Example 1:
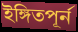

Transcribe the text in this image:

ইঙ্গিতপূর্ন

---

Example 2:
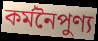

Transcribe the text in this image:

কর্মনৈপুণ্য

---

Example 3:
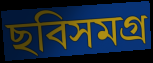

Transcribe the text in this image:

ছবিসমগ্র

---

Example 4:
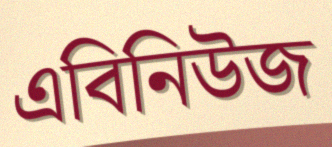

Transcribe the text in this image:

এবিনিউজ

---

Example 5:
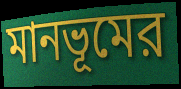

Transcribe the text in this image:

মানভূমের